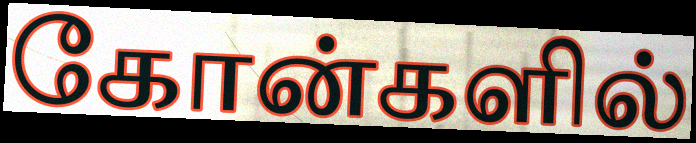
கோன்களில்